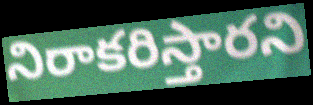
నిరాకరిస్తారని